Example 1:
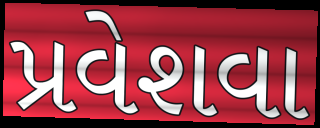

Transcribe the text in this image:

પ્રવેશવા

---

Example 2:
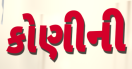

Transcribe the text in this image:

કોણીની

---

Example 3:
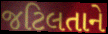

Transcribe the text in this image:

જટિલતાને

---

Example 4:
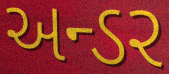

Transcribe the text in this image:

અન્ડર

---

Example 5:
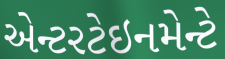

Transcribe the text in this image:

એન્ટરટેઇનમેન્ટે